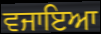
ਵਜਾਇਆ